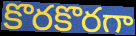
కొరకొరగా